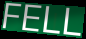
FELL